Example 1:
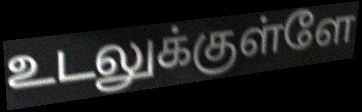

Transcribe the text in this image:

உடலுக்குள்ளே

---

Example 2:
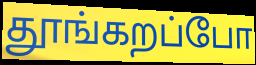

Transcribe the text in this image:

தூங்கறப்போ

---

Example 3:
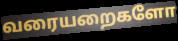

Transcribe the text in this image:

வரையறைகளோ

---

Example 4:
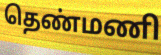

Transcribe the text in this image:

தெண்மணி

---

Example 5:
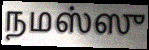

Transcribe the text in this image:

நமஸ்ஸு